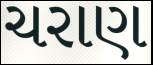
ચરાણ